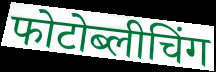
फोटोब्लीचिंग